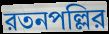
রতনপল্লির